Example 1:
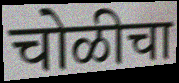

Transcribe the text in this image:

चोळीचा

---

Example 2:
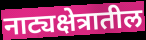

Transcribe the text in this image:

नाट्यक्षेत्रातील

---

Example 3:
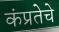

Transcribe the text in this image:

कंप्रतेचे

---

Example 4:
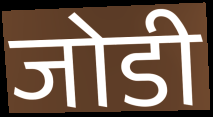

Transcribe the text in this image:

जोडी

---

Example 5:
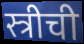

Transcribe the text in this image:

स्त्रीची